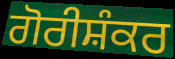
ਗੋਰੀਸ਼ੰਕਰ